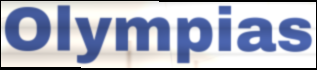
Olympias